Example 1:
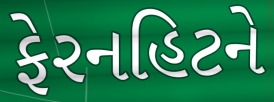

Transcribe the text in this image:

ફેરનહિટને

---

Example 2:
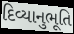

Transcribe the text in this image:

દિવ્યાનુભૂતિ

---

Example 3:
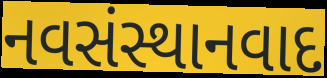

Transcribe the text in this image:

નવસંસ્થાનવાદ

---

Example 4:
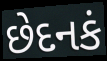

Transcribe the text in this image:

છેદનકં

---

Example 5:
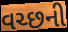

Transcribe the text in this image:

વચ્છની